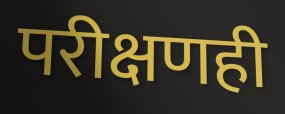
परीक्षणही